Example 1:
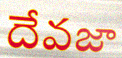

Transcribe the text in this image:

దేవజా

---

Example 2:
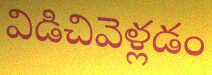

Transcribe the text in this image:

విడిచివెళ్లడం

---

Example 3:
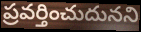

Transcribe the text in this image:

ప్రవర్తించుదునని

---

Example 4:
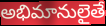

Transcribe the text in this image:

అభిమానులైతే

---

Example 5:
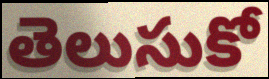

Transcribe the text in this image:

తెలుసుకో